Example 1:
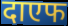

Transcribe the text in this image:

दाएफ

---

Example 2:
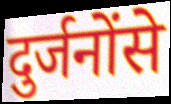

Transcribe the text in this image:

दुर्जनोंसे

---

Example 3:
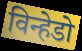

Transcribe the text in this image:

विन्हेडो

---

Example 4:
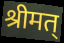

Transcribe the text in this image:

श्रीमत्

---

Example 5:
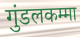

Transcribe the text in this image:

गुंडलकम्मा